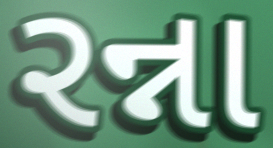
રન્ના